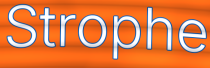
Strophe